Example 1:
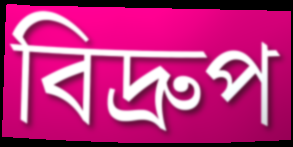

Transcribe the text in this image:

বিদ্রুপ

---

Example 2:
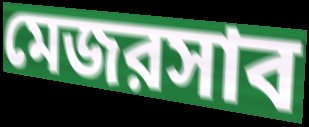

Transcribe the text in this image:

মেজরসাব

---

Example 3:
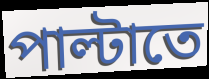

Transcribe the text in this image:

পাল্টাতে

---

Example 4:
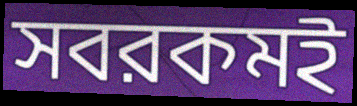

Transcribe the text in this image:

সবরকমই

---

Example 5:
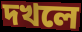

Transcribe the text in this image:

দখলে